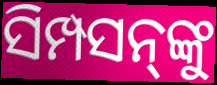
ସିମ୍ପସନ୍‍ଙ୍କୁ